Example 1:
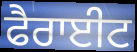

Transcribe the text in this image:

ਫੈਰਾਈਟ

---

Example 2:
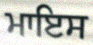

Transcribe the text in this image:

ਮਾਇਸ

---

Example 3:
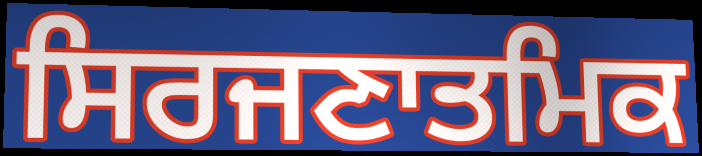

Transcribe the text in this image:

ਸਿਰਜਣਾਤਮਿਕ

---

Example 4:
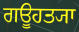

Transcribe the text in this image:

ਗਊਹਤ੍ਯਾ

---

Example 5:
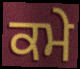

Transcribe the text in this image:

ਕਮੇ